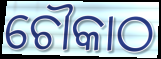
ଚୌକାଠ